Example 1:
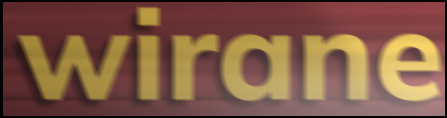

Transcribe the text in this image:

wirane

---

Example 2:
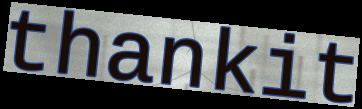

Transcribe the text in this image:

thankit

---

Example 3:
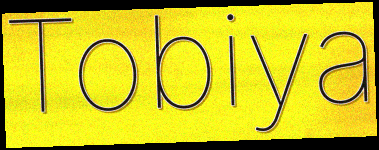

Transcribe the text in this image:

Tobiya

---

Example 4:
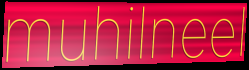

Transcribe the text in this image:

muhilneel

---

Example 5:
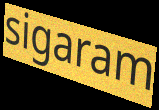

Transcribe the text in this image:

sigaram